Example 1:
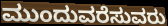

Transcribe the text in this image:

ಮುಂದುವರೆಸುವರು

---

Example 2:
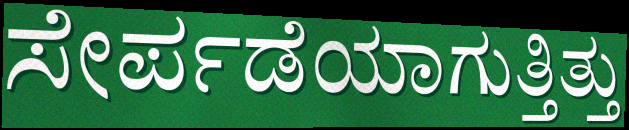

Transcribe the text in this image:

ಸೇರ್ಪಡೆಯಾಗುತ್ತಿತ್ತು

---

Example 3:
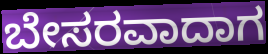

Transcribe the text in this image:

ಬೇಸರವಾದಾಗ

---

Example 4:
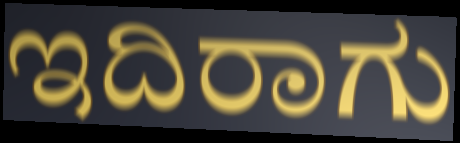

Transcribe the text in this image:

ಇದಿರಾಗು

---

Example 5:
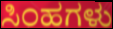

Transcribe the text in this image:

ಸಿಂಹಗಳು